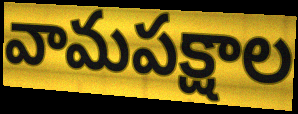
వామపక్షాల